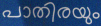
പാതിരയും